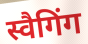
स्वैगिंग